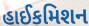
હાઈકમિશન